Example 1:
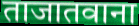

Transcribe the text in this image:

ताजातवाना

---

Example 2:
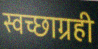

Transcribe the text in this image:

स्वच्छाग्रही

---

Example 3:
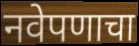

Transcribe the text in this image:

नवेपणाचा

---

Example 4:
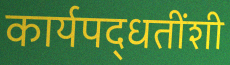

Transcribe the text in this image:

कार्यपद्धतींशी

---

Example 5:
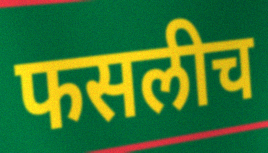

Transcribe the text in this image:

फसलीच